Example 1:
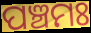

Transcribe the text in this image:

ପଞ୍ଚମଃ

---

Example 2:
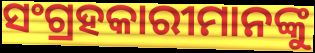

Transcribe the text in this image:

ସଂଗ୍ରହକାରୀମାନଙ୍କୁ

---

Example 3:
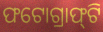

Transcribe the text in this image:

ଫଟୋଗ୍ରାଫ୍‌ଟି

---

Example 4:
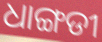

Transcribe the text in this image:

ଧାଙ୍ଗଡୀ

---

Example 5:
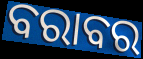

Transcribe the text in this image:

ବରାବର